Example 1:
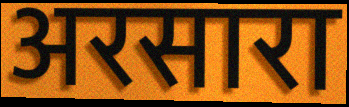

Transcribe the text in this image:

अरसारा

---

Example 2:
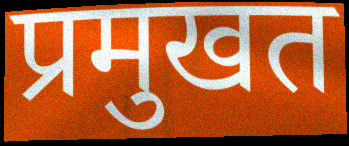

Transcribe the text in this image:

प्रमुखत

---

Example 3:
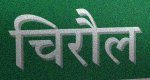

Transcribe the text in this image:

चिरौल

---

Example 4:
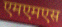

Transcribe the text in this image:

एमएमएस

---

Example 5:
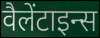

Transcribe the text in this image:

वैलेंटाइन्स